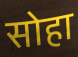
सोहा